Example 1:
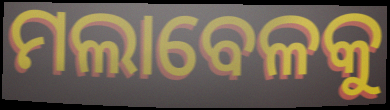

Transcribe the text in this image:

ମଲାବେଳକୁ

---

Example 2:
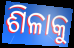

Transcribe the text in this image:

ଶିଳାକୁ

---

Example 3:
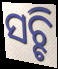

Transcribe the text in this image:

ସଚ୍ଚି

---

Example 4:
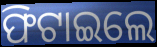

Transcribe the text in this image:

ଫିଟାଇଲେ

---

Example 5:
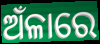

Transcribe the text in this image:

ଅଁଳାରେ